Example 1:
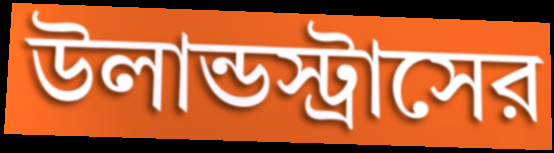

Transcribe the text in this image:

উলান্ডস্ট্রাসের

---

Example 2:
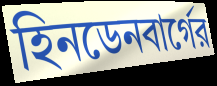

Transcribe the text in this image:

হিনডেনবার্গের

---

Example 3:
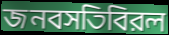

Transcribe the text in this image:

জনবসতিবিরল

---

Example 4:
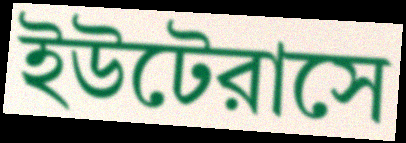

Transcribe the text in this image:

ইউটেরাসে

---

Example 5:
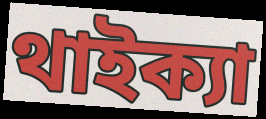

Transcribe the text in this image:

থাইক্যা